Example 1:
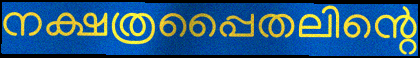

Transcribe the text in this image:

നക്ഷത്രപ്പൈതലിന്റെ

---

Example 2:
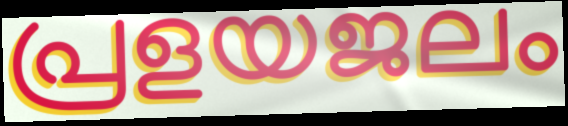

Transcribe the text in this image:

പ്രളയജലം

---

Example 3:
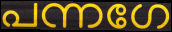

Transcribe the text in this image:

പന്നഗേ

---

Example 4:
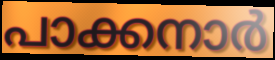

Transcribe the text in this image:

പാക്കനാർ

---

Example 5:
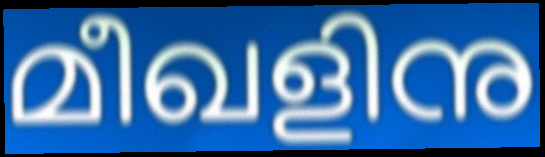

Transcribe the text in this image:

മീഖളിനു